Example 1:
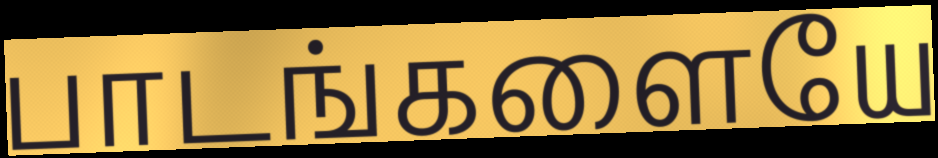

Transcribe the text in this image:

பாடங்களையே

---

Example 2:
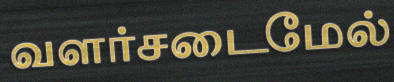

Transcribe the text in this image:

வளர்சடைமேல்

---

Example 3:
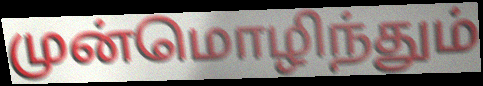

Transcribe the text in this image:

முன்மொழிந்தும்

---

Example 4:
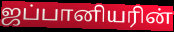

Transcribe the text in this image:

ஜப்பானியரின்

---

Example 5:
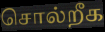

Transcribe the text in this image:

சொல்றீக